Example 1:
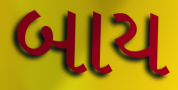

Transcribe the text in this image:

બાય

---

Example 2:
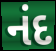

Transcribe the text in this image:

નંદ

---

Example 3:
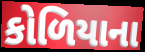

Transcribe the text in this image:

કોળિયાના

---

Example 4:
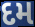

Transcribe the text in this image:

દમ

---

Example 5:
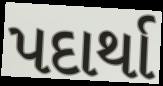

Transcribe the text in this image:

પદાર્થા